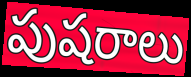
పుషరాలు